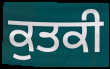
ਕੁਤਕੀ